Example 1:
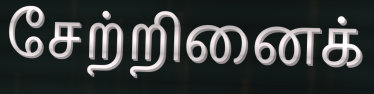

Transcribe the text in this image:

சேற்றினைக்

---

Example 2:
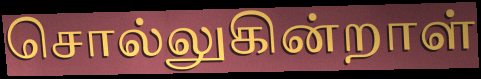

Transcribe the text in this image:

சொல்லுகின்றாள்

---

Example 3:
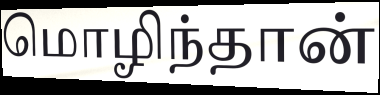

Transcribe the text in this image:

மொழிந்தான்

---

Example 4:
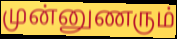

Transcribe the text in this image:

முன்னுணரும்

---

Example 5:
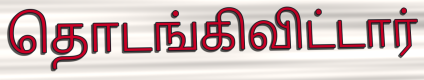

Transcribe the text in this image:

தொடங்கிவிட்டார்